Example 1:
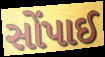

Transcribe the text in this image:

સોંપાઈ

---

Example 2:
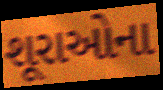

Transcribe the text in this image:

શૂરાઓના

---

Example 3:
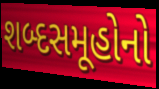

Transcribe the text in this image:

શબ્દસમૂહોનો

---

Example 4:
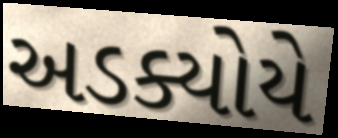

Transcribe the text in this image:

અડક્યોયે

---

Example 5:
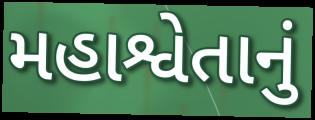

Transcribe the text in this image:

મહાશ્વેતાનું